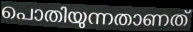
പൊതിയുന്നതാണത്